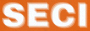
SECI